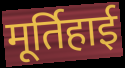
मूर्तिहाई